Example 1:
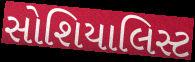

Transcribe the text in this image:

સોશિયાલિસ્ટ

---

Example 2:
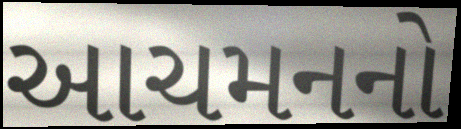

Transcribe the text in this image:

આચમનનો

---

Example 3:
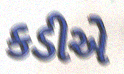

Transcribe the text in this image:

કડીએ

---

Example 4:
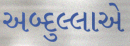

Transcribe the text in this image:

અબ્દુલ્લાએ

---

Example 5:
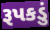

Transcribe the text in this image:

રૂપકડું